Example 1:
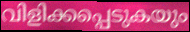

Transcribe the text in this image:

വിളിക്കപ്പെടുകയും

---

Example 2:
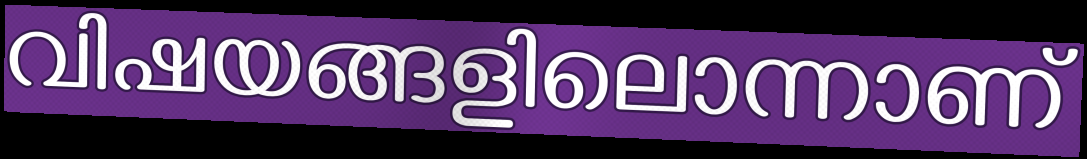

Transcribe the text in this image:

വിഷയങ്ങളിലൊന്നാണ്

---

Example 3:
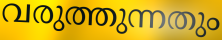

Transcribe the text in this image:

വരുത്തുന്നതും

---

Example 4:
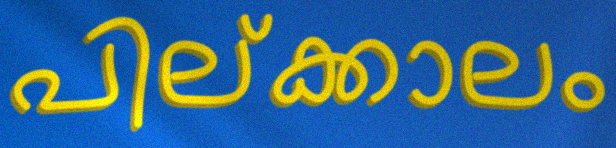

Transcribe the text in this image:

പില്ക്കാലം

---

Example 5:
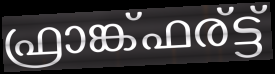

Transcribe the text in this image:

ഫ്രാങ്ക്ഫര്ട്ട്